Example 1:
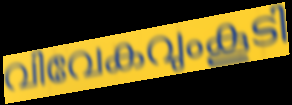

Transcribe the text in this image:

വിവേകവുംകൂടി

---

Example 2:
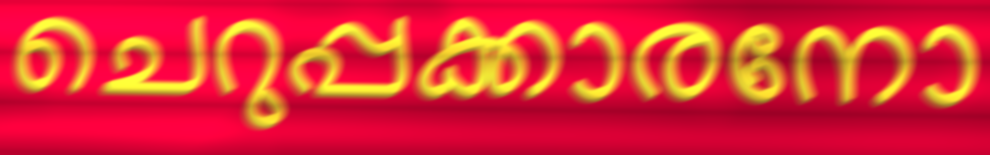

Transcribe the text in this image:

ചെറുപ്പക്കാരനോ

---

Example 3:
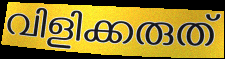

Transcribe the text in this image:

വിളിക്കരുത്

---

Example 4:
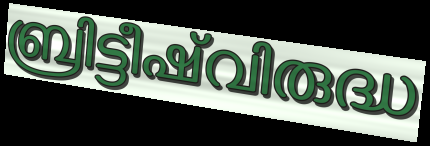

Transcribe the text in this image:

ബ്രിട്ടീഷ്‌വിരുദ്ധ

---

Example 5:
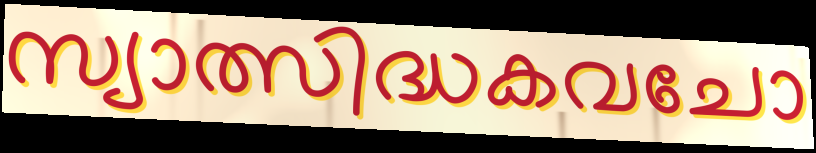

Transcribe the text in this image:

സ്യാത്സിദ്ധകവചോ